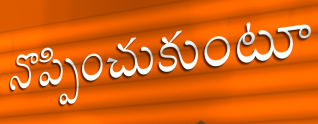
నొప్పించుకుంటూ